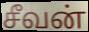
சீவன்